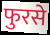
फुरसे